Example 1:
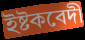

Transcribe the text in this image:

ইষ্টকবেদী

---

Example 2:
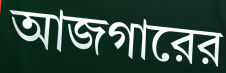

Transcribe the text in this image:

আজগারের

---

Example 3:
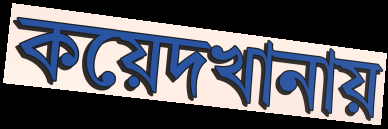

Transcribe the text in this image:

কয়েদখানায়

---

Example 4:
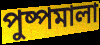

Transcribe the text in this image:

পুষ্পমালা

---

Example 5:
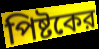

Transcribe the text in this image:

পিষ্টকের